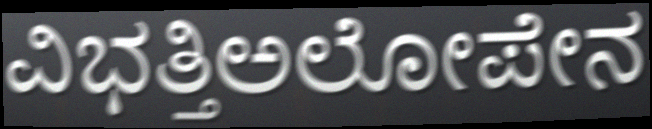
ವಿಭತ್ತಿಅಲೋಪೇನ